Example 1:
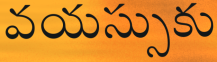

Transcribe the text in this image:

వయస్సుకు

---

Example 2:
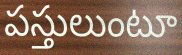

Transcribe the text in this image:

పస్తులుంటూ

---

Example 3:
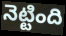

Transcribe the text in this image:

నెట్టింది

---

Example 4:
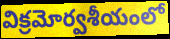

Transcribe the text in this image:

విక్రమోర్వశీయంలో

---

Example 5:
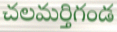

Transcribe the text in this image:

చలమర్తిగండ